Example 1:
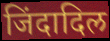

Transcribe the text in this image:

जिंदादिल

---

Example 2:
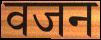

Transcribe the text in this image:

वजन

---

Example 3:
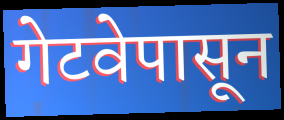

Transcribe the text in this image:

गेटवेपासून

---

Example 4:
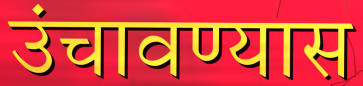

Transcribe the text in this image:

उंचावण्यास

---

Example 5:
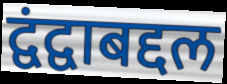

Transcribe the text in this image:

द्वंद्वाबद्दल